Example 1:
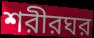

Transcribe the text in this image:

শরীরঘর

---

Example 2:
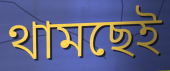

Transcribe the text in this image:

থামছেই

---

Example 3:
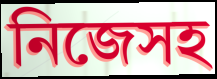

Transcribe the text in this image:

নিজেসহ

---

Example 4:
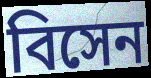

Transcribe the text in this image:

বিসেন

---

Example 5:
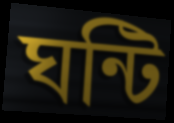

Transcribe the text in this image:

ঘন্টি